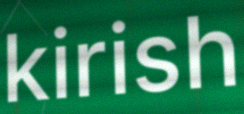
kirish